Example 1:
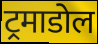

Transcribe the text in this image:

ट्रमाडोल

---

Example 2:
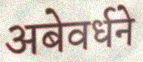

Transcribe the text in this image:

अबेवर्धने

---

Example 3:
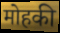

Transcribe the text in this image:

मोहकी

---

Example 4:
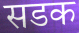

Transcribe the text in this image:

सडक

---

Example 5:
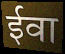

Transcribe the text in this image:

ईवा